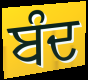
ਬੰਦ